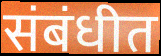
संबंधीत